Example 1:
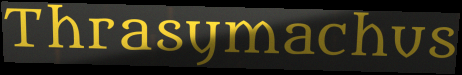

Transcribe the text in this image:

Thrasymachus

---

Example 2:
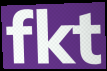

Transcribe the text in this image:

fkt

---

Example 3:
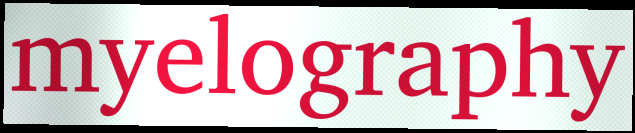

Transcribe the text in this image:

myelography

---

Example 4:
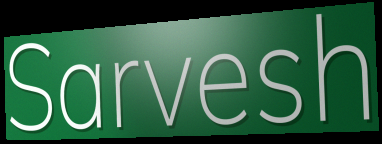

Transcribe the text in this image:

Sarvesh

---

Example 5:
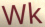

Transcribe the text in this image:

Wk